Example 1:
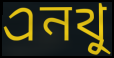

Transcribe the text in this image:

এনথু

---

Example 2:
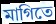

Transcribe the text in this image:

মাগিতে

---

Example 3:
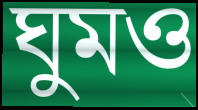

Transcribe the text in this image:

ঘুমও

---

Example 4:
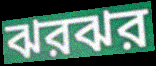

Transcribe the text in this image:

ঝরঝর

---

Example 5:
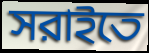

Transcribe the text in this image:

সরাইতে